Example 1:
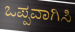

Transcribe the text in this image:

ಒಪ್ಪವಾಗಿಸಿ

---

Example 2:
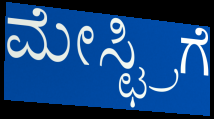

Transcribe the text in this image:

ಮೇಸ್ಟ್ರಿಗೆ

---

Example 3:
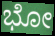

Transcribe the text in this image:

ಭೋ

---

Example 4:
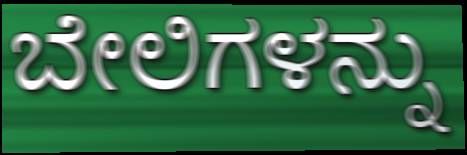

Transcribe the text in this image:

ಬೇಲಿಗಳನ್ನು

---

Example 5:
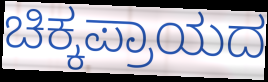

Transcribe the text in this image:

ಚಿಕ್ಕಪ್ರಾಯದ